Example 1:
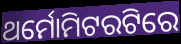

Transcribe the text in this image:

ଥର୍ମୋମିଟରଟିରେ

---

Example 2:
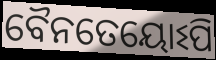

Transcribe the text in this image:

ବୈନତେୟୋଽପି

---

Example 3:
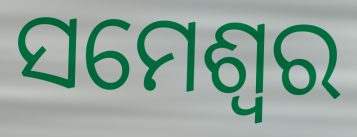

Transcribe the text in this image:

ସମେଶ୍ୱର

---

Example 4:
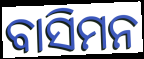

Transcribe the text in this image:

ବାସିମନ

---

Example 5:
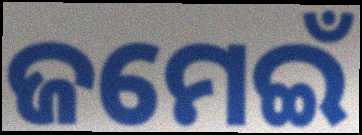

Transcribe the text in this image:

ଜମେଇଁ